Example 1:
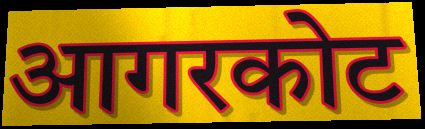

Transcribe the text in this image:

आगरकोट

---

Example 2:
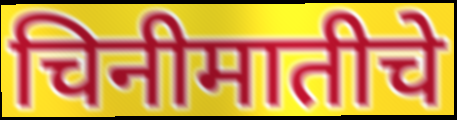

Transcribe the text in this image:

चिनीमातीचे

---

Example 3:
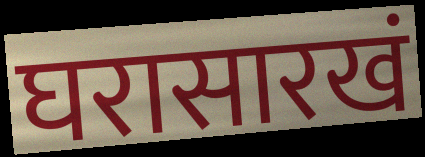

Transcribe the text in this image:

घरासारखं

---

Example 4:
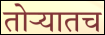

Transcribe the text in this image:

तोऱ्यातच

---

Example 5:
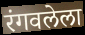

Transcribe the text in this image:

रंगवलेला